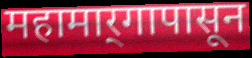
महामार्गापासून